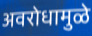
अवरोधामुळे